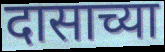
दासाच्या